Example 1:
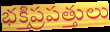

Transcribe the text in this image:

భక్తిప్రపత్తులు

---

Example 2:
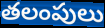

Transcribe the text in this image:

తలంపులు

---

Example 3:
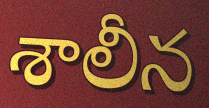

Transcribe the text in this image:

శాలీన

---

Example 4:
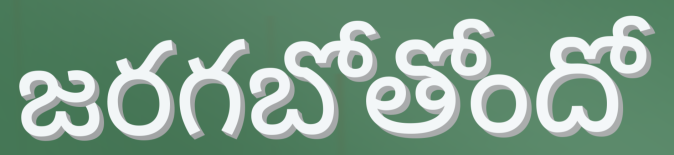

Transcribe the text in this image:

జరగబోతోందో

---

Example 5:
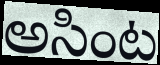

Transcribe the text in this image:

అసింట